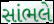
સાંભલે